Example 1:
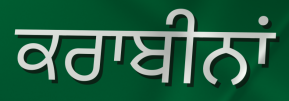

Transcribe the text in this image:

ਕਰਾਬੀਨਾਂ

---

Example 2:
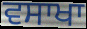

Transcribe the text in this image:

ਵਸਾਖਾ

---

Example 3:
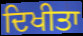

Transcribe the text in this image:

ਦਿਖੀਤਾ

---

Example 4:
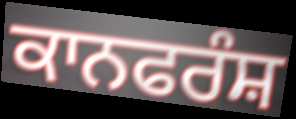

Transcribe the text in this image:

ਕਾਨਫਰੰਸ਼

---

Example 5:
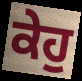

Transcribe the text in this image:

ਕੇਹੁ